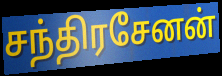
சந்திரசேனன்